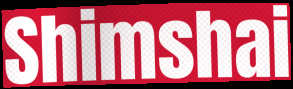
Shimshai